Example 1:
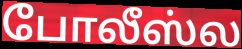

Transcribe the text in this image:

போலீஸ்ல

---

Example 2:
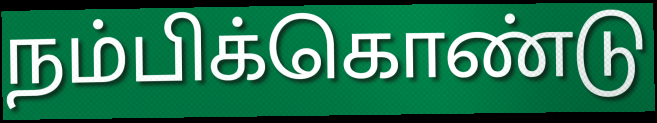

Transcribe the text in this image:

நம்பிக்கொண்டு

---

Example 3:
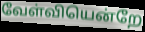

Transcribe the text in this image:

வேள்வியென்றே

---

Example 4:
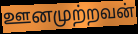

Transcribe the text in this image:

ஊனமுற்றவன்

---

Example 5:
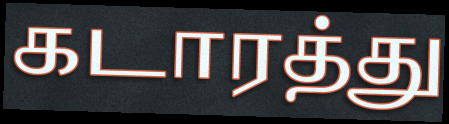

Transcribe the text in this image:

கடாரத்து